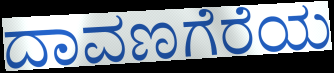
ದಾವಣಗೆರೆಯ